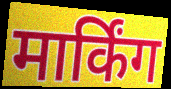
मार्किंग